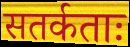
सतर्कताः